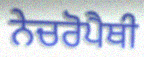
ਨੇਚਰੋਪੈਥੀ